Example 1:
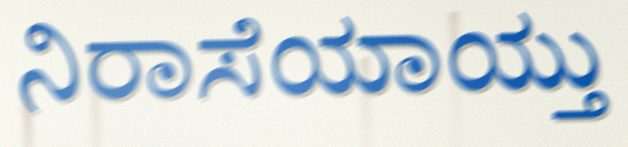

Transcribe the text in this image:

ನಿರಾಸೆಯಾಯ್ತು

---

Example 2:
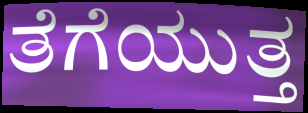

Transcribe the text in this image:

ತೆಗೆಯುತ್ತ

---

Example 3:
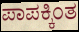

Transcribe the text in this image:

ಪಾಪಕ್ಕಿಂತ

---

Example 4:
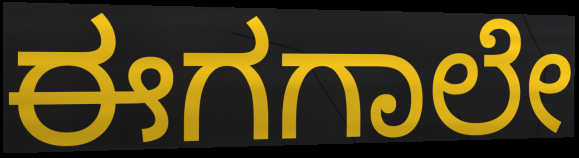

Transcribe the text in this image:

ಈಗಗಾಲೇ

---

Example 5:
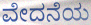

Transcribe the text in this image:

ವೇದನೆಯ